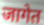
जागेत